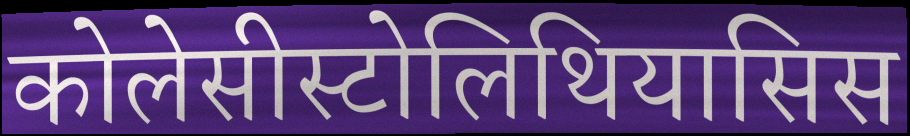
कोलेसीस्टोलिथियासिस